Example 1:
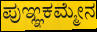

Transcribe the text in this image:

ಪುಞ್ಞಕಮ್ಮೇನ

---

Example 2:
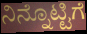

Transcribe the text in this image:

ನಿನ್ನೊಟ್ಟಿಗೆ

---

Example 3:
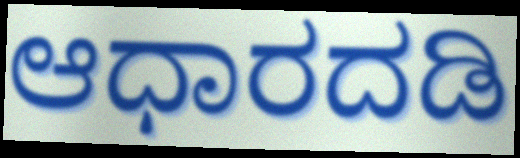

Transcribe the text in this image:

ಆಧಾರದಡಿ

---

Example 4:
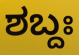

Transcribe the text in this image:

ಶಬ್ದಃ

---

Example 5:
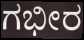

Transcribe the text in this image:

ಗಭೀರ